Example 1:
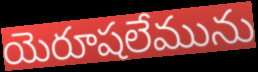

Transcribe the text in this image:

యెరూషలేమును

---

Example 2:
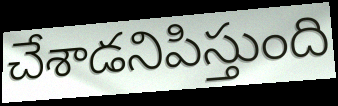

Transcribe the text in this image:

చేశాడనిపిస్తుంది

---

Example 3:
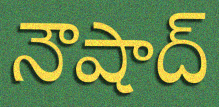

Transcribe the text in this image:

నౌషాద్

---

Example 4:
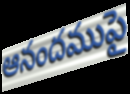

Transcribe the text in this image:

ఆనందముపై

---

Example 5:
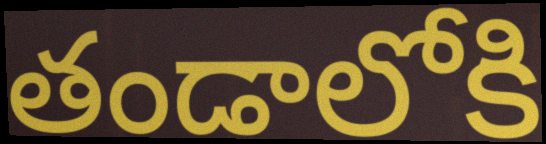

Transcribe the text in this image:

తండాలోకి